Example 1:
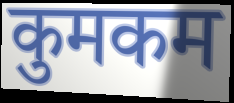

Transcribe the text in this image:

कुमकम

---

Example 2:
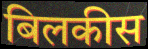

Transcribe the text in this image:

बिलकीस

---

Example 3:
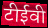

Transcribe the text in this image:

टीईवी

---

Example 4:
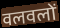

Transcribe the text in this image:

वलवलों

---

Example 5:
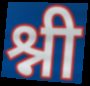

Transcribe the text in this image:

श्नी